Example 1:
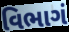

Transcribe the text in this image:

વિભાગં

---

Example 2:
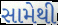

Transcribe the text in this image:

સામેથી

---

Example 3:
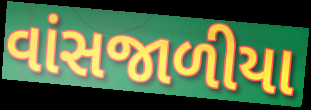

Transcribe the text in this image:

વાંસજાળીયા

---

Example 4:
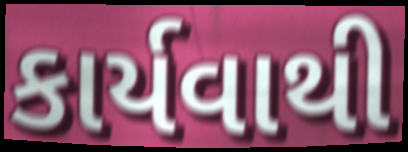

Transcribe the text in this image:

કાર્યવાથી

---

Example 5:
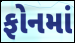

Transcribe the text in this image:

ફોનમાં